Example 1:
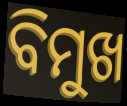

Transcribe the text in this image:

ବିମୁଖ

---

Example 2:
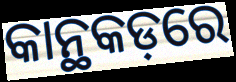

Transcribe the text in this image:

କାନ୍ଥକଡ଼ରେ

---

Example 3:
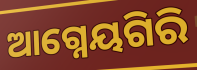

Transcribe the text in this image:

ଆଗ୍ନେୟଗିରି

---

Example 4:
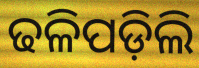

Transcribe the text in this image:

ଢଳିପଡ଼ିଲି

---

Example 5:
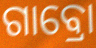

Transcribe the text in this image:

ଗାବ୍ରୋ